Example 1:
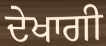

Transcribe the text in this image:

ਦੇਖਾਗੀ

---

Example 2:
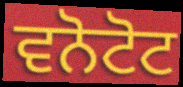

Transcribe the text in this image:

ਵਨੋਟੋਟ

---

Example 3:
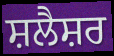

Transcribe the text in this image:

ਸ਼ਲੈਸ਼ਰ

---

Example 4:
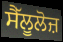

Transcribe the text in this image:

ਸੈੱਲੂਲੋਜ਼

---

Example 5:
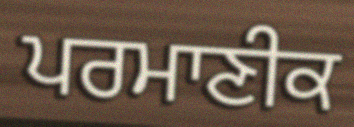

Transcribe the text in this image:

ਪਰਮਾਣੀਕ